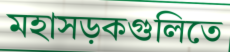
মহাসড়কগুলিতে